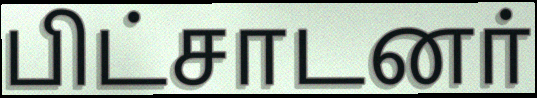
பிட்சாடனர்